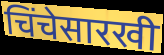
चिंचेसारखी